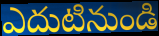
ఎదుటినుండి